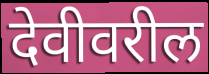
देवीवरील